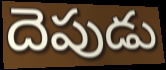
దెపుడు